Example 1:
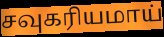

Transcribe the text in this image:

சவுகரியமாய்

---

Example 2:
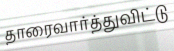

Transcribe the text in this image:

தாரைவார்த்துவிட்டு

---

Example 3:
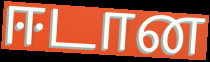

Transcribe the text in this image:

ஈடான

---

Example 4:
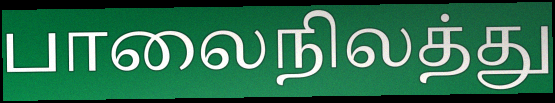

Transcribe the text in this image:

பாலைநிலத்து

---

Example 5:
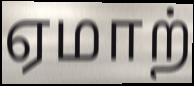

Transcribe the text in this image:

ஏமாற்